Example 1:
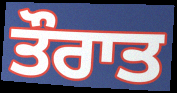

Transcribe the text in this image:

ਤੌਰਾਤ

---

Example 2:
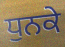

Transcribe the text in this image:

ਧੁਨਕੇ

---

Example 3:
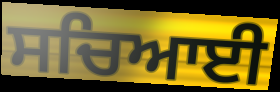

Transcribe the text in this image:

ਸਚਿਆਈ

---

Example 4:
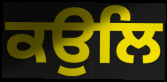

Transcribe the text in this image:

ਕਉਲਿ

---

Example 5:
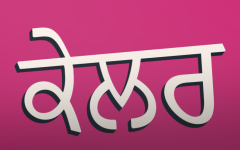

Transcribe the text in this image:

ਕੇਲਰ